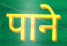
पाने